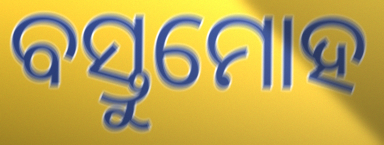
ବସ୍ତୁମୋହ